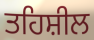
ਤਹਿਸ਼ੀਲ